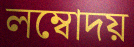
লম্বোদয়